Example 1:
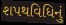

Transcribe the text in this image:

શપથવિધિનું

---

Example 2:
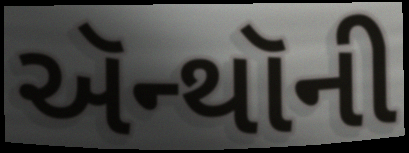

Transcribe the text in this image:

ઍન્થૉની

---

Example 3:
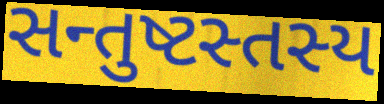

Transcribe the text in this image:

સન્તુષ્ટસ્તસ્ય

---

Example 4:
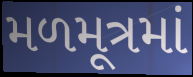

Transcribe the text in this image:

મળમૂત્રમાં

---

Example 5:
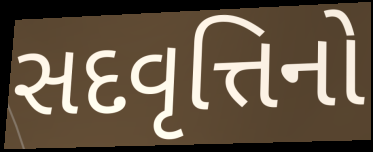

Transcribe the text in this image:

સદવૃત્તિનો